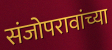
संजोपरावांच्या